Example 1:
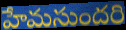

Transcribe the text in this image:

హేమసుందరి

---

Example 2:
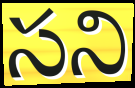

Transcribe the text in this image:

సని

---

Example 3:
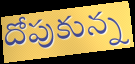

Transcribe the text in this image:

దోపుకున్న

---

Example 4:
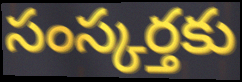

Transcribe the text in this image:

సంస్కర్తకు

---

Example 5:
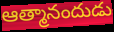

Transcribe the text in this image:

ఆత్మానందుడు